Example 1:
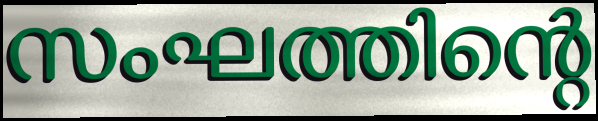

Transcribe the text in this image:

സംഘത്തിന്റെ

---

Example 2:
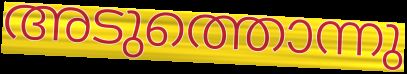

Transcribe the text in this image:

അടുത്തൊന്നു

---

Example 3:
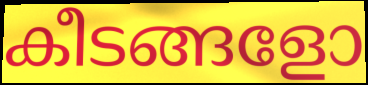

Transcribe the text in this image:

കീടങ്ങളോ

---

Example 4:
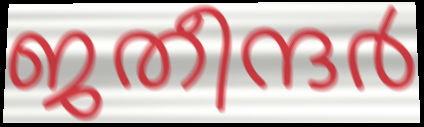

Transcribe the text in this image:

ജതീന്ദർ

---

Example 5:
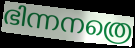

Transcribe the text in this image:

ഭിന്നനത്രെ